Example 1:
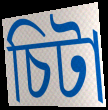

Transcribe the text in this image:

চিটা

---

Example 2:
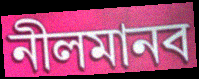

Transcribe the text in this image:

নীলমানব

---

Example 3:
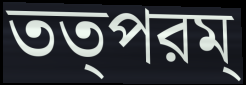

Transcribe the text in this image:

তত্পরম্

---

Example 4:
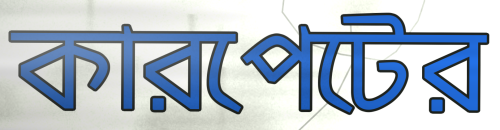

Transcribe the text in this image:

কারপেটের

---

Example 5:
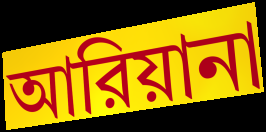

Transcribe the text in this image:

আরিয়ানা